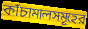
কাঁচামালসমূহের